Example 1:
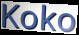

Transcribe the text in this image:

Koko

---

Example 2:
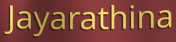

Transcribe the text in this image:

Jayarathina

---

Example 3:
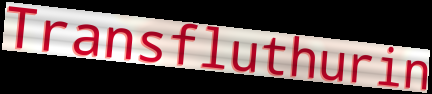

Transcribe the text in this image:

Transfluthurin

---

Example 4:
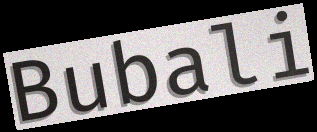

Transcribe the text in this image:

Bubali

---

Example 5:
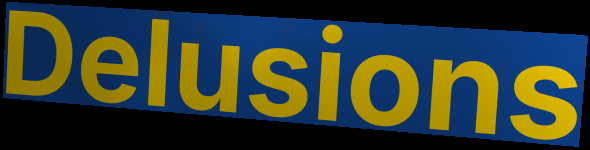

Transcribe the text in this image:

Delusions